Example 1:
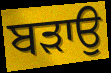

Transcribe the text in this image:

ਬਡ਼ਾਉ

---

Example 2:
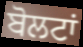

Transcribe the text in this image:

ਬੋਲਟਾਂ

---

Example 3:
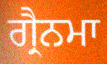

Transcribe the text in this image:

ਗ੍ਰੈਨਮਾ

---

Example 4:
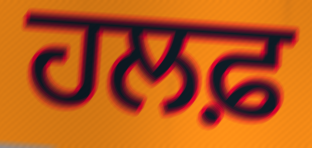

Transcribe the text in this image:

ਹਲਫ਼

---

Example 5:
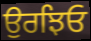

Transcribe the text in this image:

ਉਰਝਿਓ